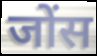
जोंस